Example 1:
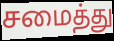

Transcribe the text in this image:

சமைத்து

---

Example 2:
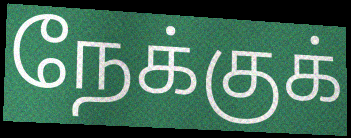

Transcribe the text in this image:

நேக்குக்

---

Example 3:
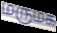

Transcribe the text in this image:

மருமக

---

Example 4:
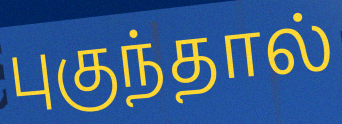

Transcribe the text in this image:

புகுந்தால்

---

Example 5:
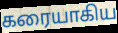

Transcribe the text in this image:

கரையாகிய